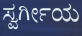
ಸ್ವರ್ಗೀಯ